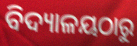
ବିଦ୍ୟାଳୟଠାରୁ